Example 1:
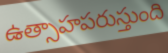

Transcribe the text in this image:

ఉత్సాహపరుస్తుంది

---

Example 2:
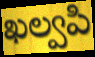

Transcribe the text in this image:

ఖల్వపి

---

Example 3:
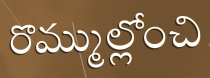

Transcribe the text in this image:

రొమ్ముల్లోంచి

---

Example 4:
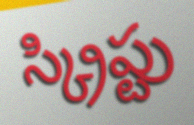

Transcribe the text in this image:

స్క్రిప్టు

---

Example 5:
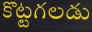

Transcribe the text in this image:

కొట్టగలడు